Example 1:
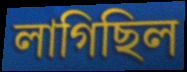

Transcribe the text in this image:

লাগিছিল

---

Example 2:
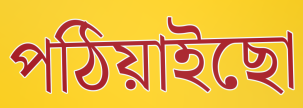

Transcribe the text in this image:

পঠিয়াইছো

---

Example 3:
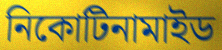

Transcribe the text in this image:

নিকোটিনামাইড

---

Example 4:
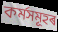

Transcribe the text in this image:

কৰ্মসমূহৰ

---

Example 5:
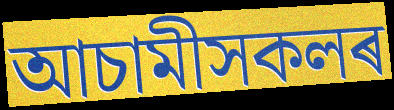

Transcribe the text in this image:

আচামীসকলৰ